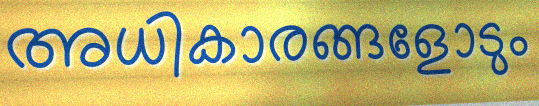
അധികാരങ്ങളോടും